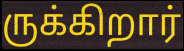
ருக்கிறார்